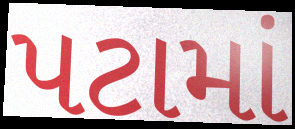
પટામાં